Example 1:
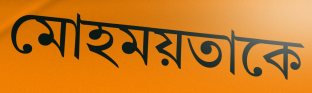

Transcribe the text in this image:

মোহময়তাকে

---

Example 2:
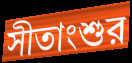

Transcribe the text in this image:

সীতাংশুর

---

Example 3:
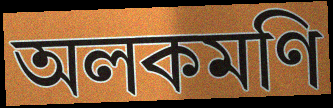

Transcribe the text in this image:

অলকমণি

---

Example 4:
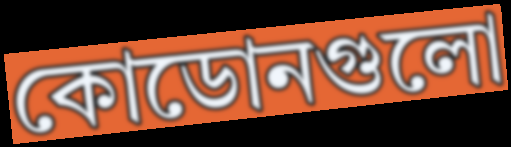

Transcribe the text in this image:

কোডোনগুলো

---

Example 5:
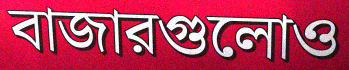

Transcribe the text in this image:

বাজারগুলোও